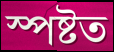
স্পষ্টত